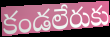
కండలేరుకు